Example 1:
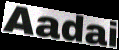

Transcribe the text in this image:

Aadai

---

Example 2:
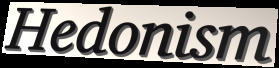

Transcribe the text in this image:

Hedonism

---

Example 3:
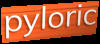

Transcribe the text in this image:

pyloric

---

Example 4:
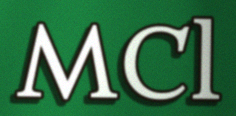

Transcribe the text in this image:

MCl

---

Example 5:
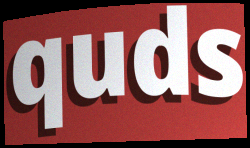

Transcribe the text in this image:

quds